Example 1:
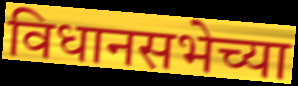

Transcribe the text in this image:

विधानसभेच्या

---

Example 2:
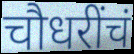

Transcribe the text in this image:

चौधरींचं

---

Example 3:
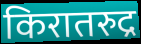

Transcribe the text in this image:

किरातरुद्र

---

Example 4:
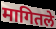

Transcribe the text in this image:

मागितले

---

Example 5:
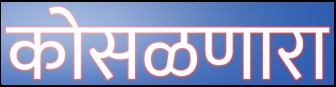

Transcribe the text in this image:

कोसळणारा